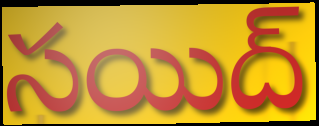
సయిద్